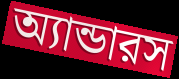
অ্যান্ডারস